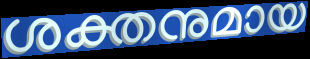
ശക്തനുമായ